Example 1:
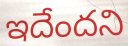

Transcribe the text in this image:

ఇదేందని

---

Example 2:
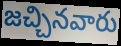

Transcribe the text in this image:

జచ్చినవారు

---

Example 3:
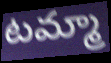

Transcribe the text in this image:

టమ్మా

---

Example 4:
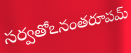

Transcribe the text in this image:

సర్వతోఽనంతరూపమ్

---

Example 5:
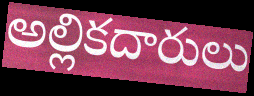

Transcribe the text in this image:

అల్లికదారులు